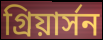
গ্রিয়ার্সন